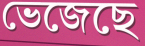
ভেজেছে